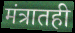
मंत्रातही